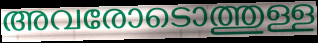
അവരോടൊത്തുള്ള